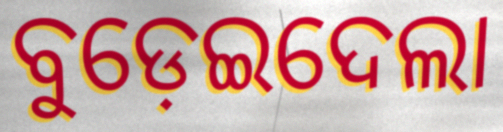
ବୁଡ଼େଇଦେଲା